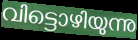
വിട്ടൊഴിയുന്നു